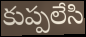
కుప్పలేసి